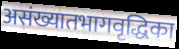
असंख्यातभागवृद्धिका